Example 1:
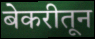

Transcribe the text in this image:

बेकरीतून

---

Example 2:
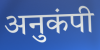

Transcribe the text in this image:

अनुकंपी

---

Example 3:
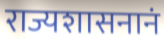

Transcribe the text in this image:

राज्यशासनानं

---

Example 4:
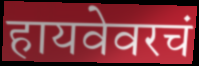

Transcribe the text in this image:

हायवेवरचं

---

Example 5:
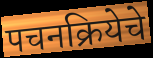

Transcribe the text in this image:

पचनक्रियेचे